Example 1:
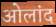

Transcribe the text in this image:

ओलांद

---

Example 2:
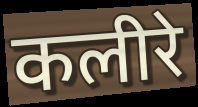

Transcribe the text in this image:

कलीरे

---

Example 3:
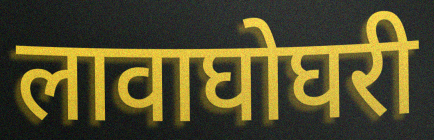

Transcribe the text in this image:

लावाघोघरी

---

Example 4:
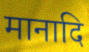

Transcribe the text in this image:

मानादि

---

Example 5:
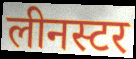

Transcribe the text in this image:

लीनस्टर